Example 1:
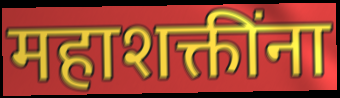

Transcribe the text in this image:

महाशक्तींना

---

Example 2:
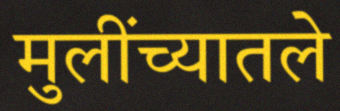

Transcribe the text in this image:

मुलींच्यातले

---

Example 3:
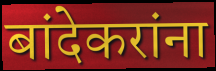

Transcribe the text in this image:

बांदेकरांना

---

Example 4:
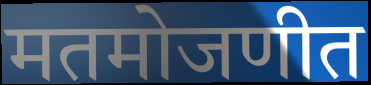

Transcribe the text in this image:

मतमोजणीत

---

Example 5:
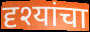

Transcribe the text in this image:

दृश्यांचा